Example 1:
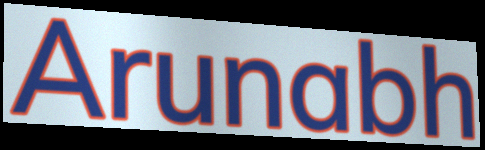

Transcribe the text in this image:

Arunabh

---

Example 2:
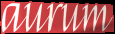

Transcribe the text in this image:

aurum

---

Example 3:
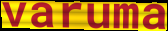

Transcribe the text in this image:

varuma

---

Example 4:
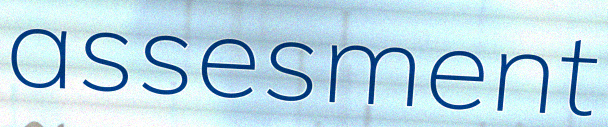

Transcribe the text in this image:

assesment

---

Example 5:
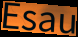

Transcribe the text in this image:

Esau